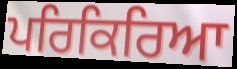
ਪਰਿਕਿਰਿਆ